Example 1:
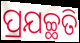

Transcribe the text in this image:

ପ୍ରଯଚ୍ଛତି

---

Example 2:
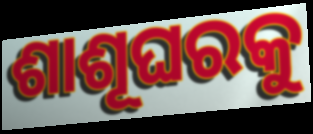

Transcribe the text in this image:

ଶାଶୂଘରକୁ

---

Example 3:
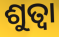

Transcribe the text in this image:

ଶୁତ୍ବା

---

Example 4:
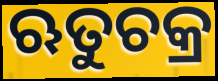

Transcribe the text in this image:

ଋତୁଚକ୍ର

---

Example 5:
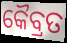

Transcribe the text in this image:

କୈବ୍ରତ